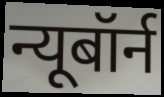
न्यूबॉर्न